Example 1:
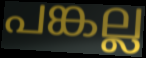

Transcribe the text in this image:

പങ്കല്ല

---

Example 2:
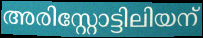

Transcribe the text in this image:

അരിസ്റ്റോട്ടിലിയന്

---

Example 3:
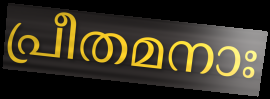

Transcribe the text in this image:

പ്രീതമനാഃ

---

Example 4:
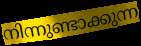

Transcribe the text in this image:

നിന്നുണ്ടാക്കുന്ന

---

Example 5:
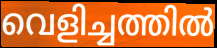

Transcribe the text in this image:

വെളിച്ചത്തിൽ